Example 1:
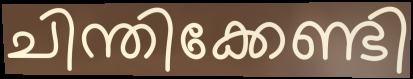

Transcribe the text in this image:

ചിന്തിക്കേണ്ടി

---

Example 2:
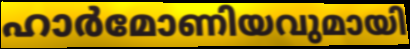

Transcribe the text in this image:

ഹാർമോണിയവുമായി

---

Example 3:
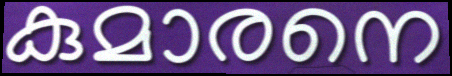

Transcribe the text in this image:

കുമാരനെ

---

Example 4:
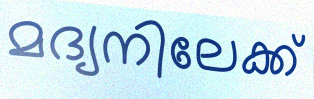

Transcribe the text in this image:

മദ്യനിലേക്ക്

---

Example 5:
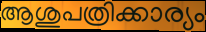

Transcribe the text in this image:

ആശുപത്രിക്കാര്യം